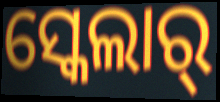
ସ୍କେଲାର୍